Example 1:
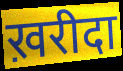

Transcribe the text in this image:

ख़रीदा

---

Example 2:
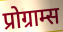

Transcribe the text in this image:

प्रोग्राम्स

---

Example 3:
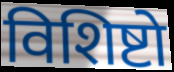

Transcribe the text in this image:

विशिष्टो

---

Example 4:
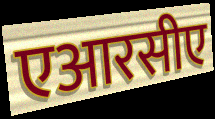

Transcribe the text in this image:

एआरसीए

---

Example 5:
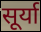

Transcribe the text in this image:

सूर्या